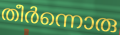
തീർന്നൊരു